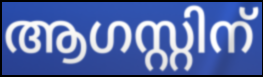
ആഗസ്റ്റിന്